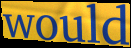
would